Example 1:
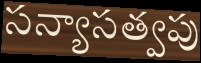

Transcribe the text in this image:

సన్యాసత్వపు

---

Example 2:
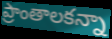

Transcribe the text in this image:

ప్రాంతాలకన్నా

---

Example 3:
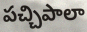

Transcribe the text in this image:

పచ్చిపాలా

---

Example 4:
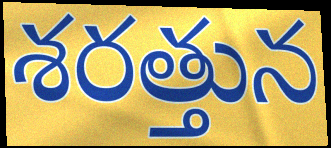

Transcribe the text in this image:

శరత్తున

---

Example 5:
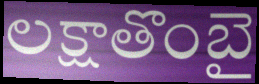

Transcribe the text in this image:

లక్షాతొంబై